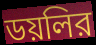
ডয়লির